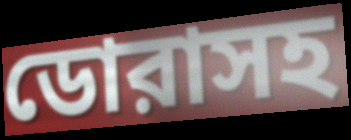
ডোরাসহ